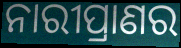
ନାରୀପ୍ରାଣର